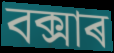
বক্সাৰ